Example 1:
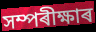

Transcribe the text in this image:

সম্পৰীক্ষাৰ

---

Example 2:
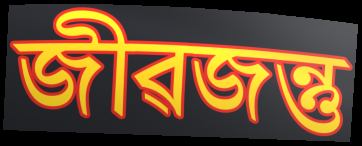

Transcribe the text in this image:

জীৱজন্তু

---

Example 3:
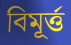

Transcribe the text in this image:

বিমূৰ্ত্ত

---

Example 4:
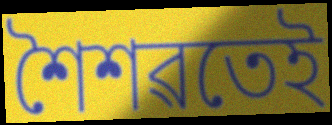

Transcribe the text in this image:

শৈশৱতেই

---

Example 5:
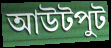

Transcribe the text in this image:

আউটপুট